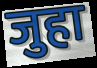
जुहा